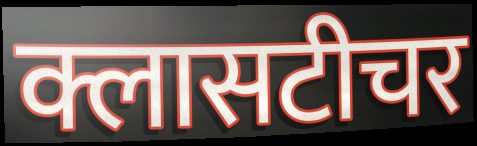
क्लासटीचर